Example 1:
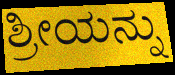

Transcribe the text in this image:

ಶ್ರೀಯನ್ನು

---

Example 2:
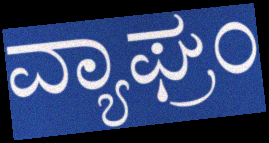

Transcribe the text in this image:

ವ್ಯಾಘ್ರಂ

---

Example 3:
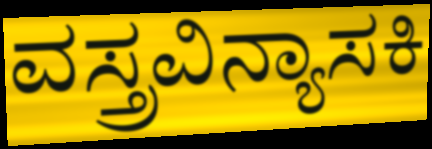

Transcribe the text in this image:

ವಸ್ತ್ರವಿನ್ಯಾಸಕಿ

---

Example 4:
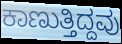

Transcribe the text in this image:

ಕಾಣುತ್ತಿದ್ದವು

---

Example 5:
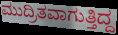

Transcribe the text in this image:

ಮುದ್ರಿತವಾಗುತ್ತಿದ್ದ